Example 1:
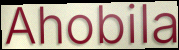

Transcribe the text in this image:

Ahobila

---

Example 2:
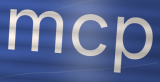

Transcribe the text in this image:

mcp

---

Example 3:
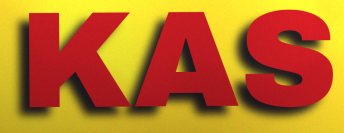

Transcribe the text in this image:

KAS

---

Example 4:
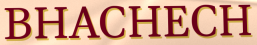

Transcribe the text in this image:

BHACHECH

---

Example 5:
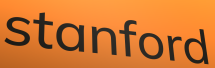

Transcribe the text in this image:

stanford